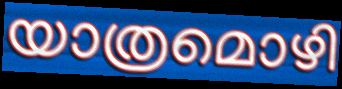
യാത്രമൊഴി